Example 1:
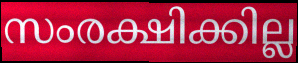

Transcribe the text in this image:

സംരക്ഷിക്കില്ല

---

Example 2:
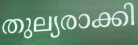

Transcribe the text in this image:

തുല്യരാക്കി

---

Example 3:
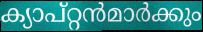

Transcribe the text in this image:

ക്യാപ്റ്റൻമാർക്കും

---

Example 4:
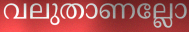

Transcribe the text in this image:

വലുതാണല്ലോ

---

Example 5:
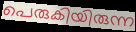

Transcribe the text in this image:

പെരുകിയിരുന്ന